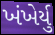
ખંખેર્યુ